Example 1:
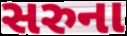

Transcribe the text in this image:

સરુના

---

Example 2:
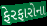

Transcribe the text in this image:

ફેરફારોના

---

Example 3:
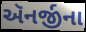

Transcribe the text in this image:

ઍનર્જીના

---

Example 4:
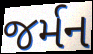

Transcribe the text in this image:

જર્મન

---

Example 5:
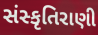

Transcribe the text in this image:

સંસ્કૃતિરાણી